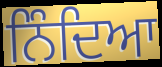
ਨਿੰਦਿਆ